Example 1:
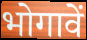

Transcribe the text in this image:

भोगावें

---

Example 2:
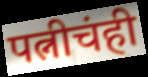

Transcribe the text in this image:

पत्नीचंही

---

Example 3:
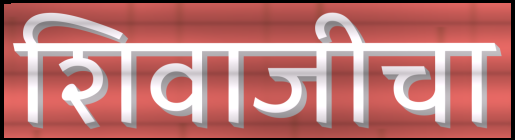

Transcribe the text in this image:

शिवाजीचा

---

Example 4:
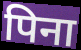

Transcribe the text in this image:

पिना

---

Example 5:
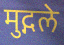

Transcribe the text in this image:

मुद्गले